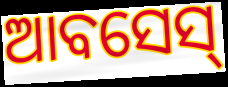
ଆବସେସ୍